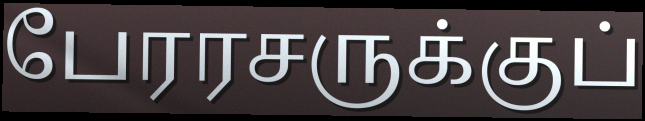
பேரரசருக்குப்